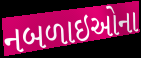
નબળાઇઓના